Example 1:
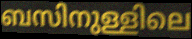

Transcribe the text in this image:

ബസിനുള്ളിലെ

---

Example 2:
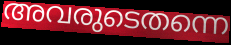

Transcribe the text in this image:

അവരുടെതന്നെ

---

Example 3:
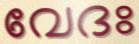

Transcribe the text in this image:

വേദഃ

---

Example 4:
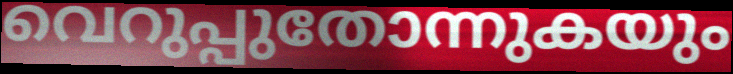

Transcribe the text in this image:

വെറുപ്പുതോന്നുകയും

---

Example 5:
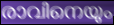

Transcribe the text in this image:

രാവിനെയും